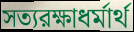
সত্যরক্ষাধর্মার্থ